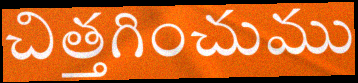
చిత్తగించుము